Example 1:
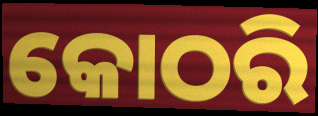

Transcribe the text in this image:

କୋଠରି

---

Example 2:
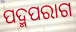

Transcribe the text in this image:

ପଦ୍ମପରାଗ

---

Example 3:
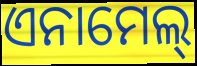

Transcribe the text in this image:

ଏନାମେଲ୍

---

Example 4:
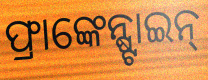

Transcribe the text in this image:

ଫ୍ରାଙ୍କେନ୍ଷ୍ଟାଇନ୍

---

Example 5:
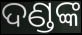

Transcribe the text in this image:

ଦଣ୍ଡଙ୍କ